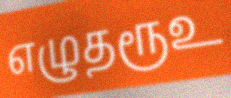
எழுதரூஉ